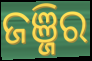
ଜଞ୍ଜିର